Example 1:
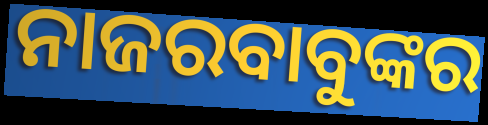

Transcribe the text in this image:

ନାଜରବାବୁଙ୍କର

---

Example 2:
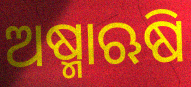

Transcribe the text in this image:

ଅଷ୍ମାଋଷି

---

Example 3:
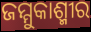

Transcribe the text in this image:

ଜମ୍ମୁକାଶ୍ମୀର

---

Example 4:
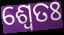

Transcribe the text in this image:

ଶ୍ଵେତଃ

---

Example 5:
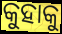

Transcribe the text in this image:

କୁହାକୁ